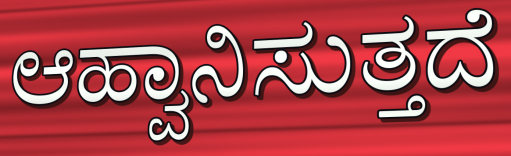
ಆಹ್ವಾನಿಸುತ್ತದೆ